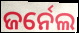
ଜର୍ନେଲ